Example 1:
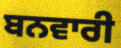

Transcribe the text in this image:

ਬਨਵਾਰੀ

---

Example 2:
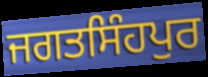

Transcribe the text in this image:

ਜਗਤਸਿੰਹਪੁਰ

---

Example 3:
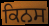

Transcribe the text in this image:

ਕਿਨਸ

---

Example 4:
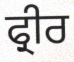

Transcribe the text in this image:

ਫ੍ਰੀਰ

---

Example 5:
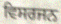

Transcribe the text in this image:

ਵਿਸਰਜਨ